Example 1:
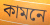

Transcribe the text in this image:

কামনে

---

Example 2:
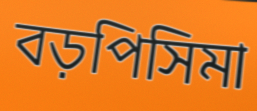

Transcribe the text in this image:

বড়পিসিমা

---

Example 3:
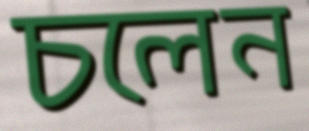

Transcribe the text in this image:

চলেন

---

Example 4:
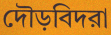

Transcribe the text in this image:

দৌড়বিদরা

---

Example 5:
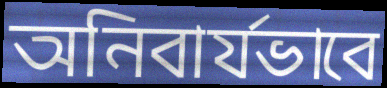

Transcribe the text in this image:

অনিবার্যভাবে